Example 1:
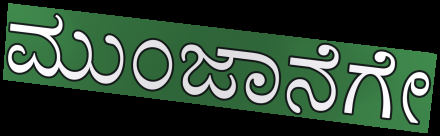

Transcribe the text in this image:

ಮುಂಜಾನೆಗೇ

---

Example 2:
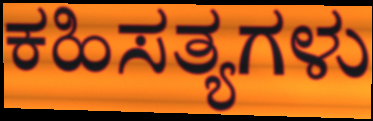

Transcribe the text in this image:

ಕಹಿಸತ್ಯಗಳು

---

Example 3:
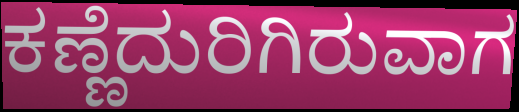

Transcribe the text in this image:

ಕಣ್ಣೆದುರಿಗಿರುವಾಗ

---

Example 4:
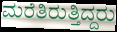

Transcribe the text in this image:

ಮರೆತಿರುತ್ತಿದ್ದರು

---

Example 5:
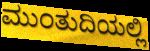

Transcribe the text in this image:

ಮುಂತುದಿಯಲ್ಲಿ